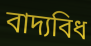
বাদ্যবিধ